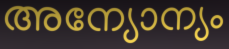
അന്യോന്യം